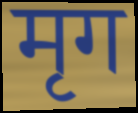
मृग